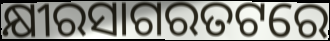
କ୍ଷୀରସାଗରତଟରେ